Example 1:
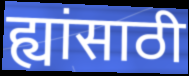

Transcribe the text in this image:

ह्यांसाठी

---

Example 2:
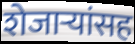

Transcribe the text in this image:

शेजाऱ्यांसह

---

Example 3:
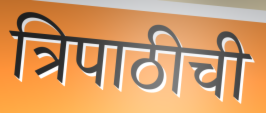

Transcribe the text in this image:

त्रिपाठीची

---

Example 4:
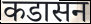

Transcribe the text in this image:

कडासन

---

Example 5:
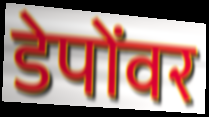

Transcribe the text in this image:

डेपोंवर